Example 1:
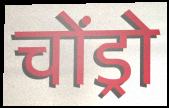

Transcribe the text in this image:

चोंड्रो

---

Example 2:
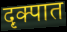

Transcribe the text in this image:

दृक्पात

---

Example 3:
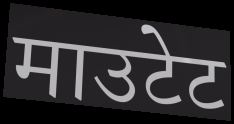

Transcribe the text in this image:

माउटेट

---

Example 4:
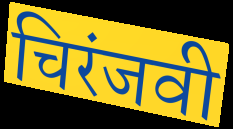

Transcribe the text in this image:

चिरंजवी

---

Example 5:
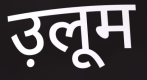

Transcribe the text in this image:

उ़लूम